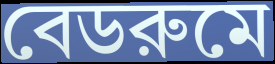
বেডরুমে